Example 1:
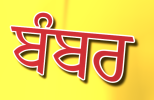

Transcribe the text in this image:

ਬੰਬਰ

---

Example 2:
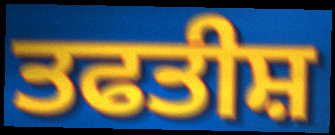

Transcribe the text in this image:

ਤਫਤੀਸ਼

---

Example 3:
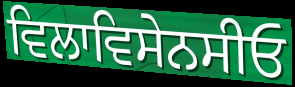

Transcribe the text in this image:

ਵਿਲਾਵਿਸੇਨਸੀਓ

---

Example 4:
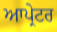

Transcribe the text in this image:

ਆਪ੍ਰੇਟਰ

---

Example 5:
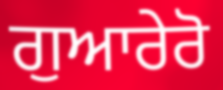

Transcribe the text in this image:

ਗੁਆਰੇਰੋ